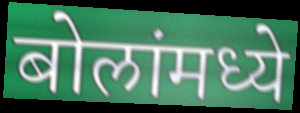
बोलांमध्ये